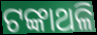
ଟଙ୍କାଥଳି